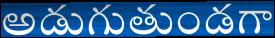
అడుగుతుండగా